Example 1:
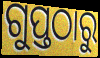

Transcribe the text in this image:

ଗୁପ୍ତଠାରୁ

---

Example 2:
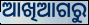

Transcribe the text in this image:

ଆଖିଆଗରୁ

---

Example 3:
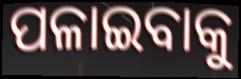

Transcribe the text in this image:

ପଳାଇବାକୁ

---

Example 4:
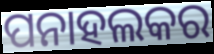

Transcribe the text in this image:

ପନାହଲକର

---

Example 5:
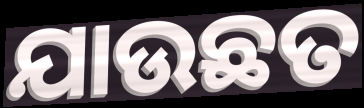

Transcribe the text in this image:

ଯାଉଛତ